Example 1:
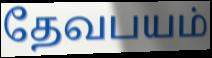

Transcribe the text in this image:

தேவபயம்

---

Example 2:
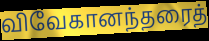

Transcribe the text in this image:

விவேகானந்தரைத்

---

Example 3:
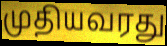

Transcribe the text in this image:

முதியவரது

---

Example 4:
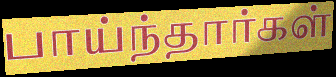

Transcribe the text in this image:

பாய்ந்தார்கள்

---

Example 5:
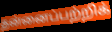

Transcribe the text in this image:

தன்னைப்பற்றிக்